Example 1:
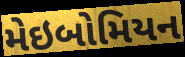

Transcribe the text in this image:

મેઇબોમિયન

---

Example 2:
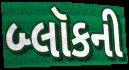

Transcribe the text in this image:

બ્લૉકની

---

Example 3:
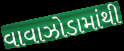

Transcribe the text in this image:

વાવાઝોડામાંથી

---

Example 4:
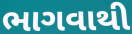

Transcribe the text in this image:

ભાગવાથી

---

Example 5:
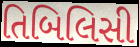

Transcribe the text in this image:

તિબિલિસી